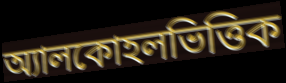
অ্যালকোহলভিত্তিক